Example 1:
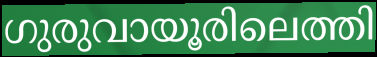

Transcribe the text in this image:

ഗുരുവായൂരിലെത്തി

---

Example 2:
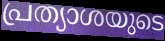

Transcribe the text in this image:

പ്രത്യാശയുടെ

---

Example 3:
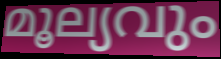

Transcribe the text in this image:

മൂല്യവും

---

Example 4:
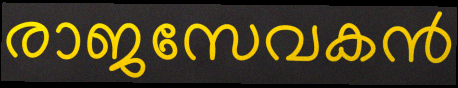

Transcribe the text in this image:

രാജസേവകൻ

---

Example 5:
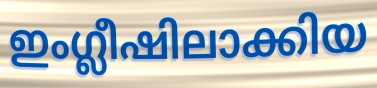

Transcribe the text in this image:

ഇംഗ്ലീഷിലാക്കിയ